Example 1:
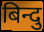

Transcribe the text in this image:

बिन्दु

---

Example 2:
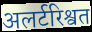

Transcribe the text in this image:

अलर्टरिश्वत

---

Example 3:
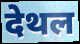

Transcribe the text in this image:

देथल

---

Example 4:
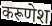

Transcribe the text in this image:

करूणेश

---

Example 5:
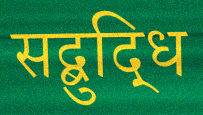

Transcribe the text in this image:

सद्बुद्धि